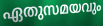
ഏതുസമയവും